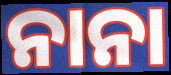
ନାନା